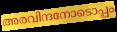
അരവിന്ദനോടൊപ്പം